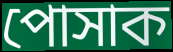
পোসাক